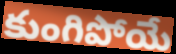
కుంగిపోయే